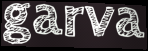
garva